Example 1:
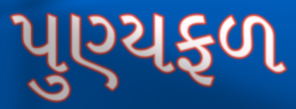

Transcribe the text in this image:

પુણ્યફળ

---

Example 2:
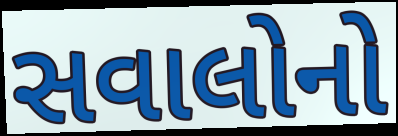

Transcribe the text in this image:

સવાલોનો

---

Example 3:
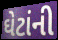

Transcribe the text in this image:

ઘેટાંની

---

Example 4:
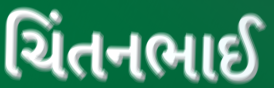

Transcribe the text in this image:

ચિંતનભાઈ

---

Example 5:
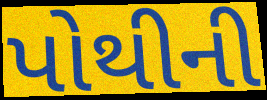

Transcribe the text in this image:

પોથીની